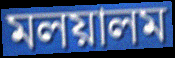
মলয়ালম